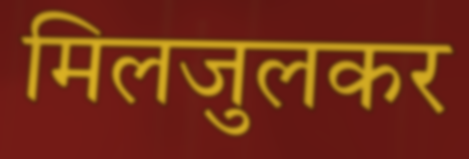
मिलजुलकर